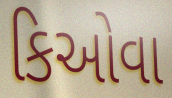
કિઓવા